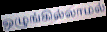
ஒழுங்கில்லாமல்